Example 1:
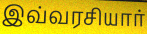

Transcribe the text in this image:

இவ்வரசியார்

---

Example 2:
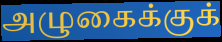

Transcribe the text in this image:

அழுகைக்குக்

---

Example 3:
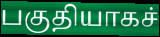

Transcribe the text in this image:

பகுதியாகச்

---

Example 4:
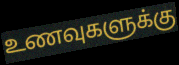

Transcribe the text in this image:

உணவுகளுக்கு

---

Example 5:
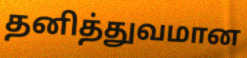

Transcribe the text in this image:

தனித்துவமான